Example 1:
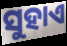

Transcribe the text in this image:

ସୁହାଏ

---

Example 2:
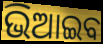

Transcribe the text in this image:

ଭିଆଇବ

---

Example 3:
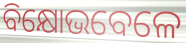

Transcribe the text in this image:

ବିକ୍ଷୋଭବେଳେ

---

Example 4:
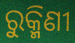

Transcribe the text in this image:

ରୁକ୍ମିଣୀ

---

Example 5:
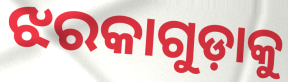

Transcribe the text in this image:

ଝରକାଗୁଡ଼ାକୁ